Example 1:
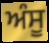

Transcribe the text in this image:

ਅੰਸੂ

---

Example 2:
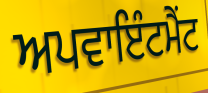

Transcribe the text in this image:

ਅਪਵਾਇੰਟਮੈਂਟ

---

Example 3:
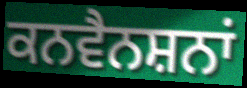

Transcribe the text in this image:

ਕਨਵੈਨਸ਼ਨਾਂ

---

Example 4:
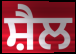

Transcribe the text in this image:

ਸ਼ੈਲ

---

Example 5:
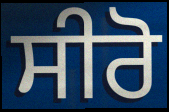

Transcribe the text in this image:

ਸੀਰੋ